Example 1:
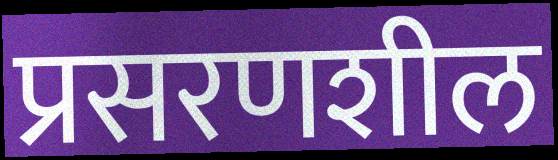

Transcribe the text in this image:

प्रसरणशील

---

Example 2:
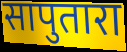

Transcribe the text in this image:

सापुतारा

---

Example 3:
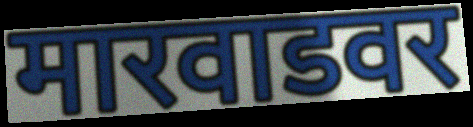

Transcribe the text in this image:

मारवाडवर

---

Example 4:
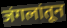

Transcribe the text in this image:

जंगलांतून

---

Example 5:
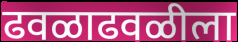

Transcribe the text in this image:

ढवळाढवळीला